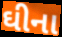
ઘીના